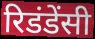
रिडंडेंसी